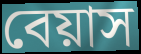
বেয়াস